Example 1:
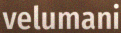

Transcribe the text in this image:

velumani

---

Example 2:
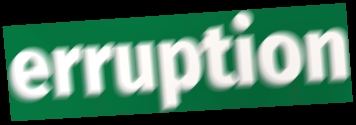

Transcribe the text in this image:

erruption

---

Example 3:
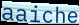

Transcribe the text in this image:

aaiche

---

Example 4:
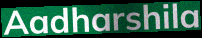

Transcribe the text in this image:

Aadharshila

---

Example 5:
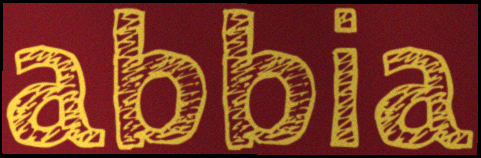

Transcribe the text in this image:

abbia